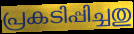
പ്രകടിപ്പിച്ചതു